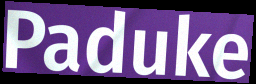
Paduke